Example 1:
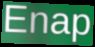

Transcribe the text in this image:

Enap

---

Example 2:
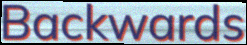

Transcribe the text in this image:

Backwards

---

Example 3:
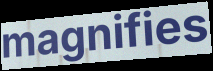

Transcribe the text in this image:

magnifies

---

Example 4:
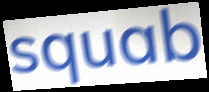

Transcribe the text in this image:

squab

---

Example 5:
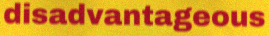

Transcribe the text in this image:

disadvantageous